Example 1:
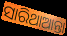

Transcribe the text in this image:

ସାରିଥାଆନ୍ତା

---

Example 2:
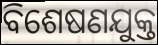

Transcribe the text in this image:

ବିଶେଷଣଯୁକ୍ତ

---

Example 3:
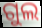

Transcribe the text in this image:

ଗୁଲ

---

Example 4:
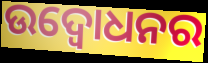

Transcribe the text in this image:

ଉଦ୍ବୋଧନର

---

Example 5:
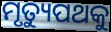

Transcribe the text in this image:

ମୃତ୍ୟୁପଥକୁ